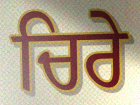
ਚਿਰੇ